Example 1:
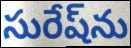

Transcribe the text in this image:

సురేష్‌ను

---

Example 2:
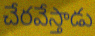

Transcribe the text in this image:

చేరవేస్తాడు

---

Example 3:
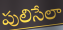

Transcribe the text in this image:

పులిసేలా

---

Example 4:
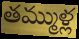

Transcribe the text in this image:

తమ్ముళ్ల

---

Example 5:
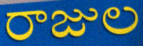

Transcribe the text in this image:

రాజుల